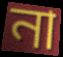
না